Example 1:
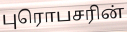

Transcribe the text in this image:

புரொபசரின்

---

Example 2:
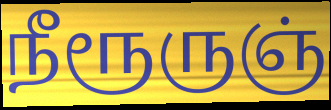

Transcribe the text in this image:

நீரூருஞ்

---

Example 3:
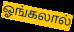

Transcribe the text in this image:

ஓங்கலால்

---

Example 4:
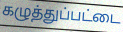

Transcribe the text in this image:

கழுத்துப்பட்டை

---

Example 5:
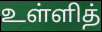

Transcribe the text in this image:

உள்ளித்